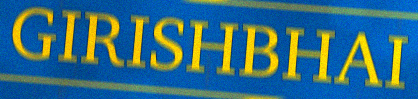
GIRISHBHAI